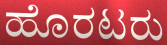
ಹೊರಟರು